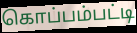
கொப்பம்பட்டி